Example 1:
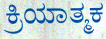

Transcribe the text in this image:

ಕ್ರಿಯಾತ್ಮಕ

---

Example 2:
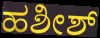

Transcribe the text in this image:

ಹಶೀಶ್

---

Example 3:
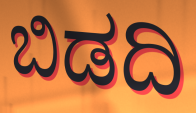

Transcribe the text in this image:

ಬಿಡದಿ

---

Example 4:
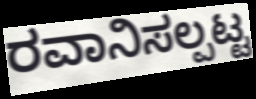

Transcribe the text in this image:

ರವಾನಿಸಲ್ಪಟ್ಟ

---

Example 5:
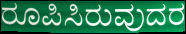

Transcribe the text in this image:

ರೂಪಿಸಿರುವುದರ